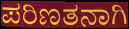
ಪರಿಣತನಾಗಿ